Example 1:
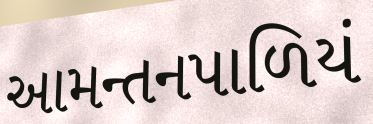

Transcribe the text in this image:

આમન્તનપાળિયં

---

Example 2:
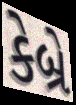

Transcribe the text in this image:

કેબ્રે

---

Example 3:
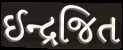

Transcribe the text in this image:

ઈન્દ્રજિત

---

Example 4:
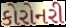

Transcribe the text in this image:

કોરોનરી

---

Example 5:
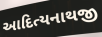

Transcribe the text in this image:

આદિત્યનાથજી